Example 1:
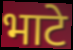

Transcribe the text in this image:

भाटे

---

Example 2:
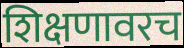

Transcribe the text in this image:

शिक्षणावरच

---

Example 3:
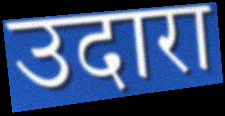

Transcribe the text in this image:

उदारा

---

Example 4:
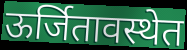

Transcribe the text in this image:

ऊर्जितावस्थेत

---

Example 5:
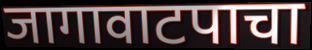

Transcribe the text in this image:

जागावाटपाचा